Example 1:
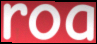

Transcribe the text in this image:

roa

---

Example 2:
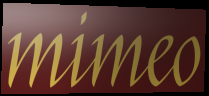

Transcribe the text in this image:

mimeo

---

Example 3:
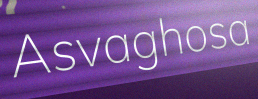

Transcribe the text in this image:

Asvaghosa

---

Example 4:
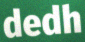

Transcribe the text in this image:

dedh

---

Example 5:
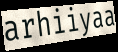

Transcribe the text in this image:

arhiiyaa